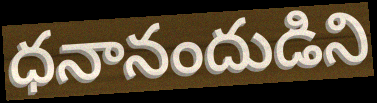
ధనానందుడిని